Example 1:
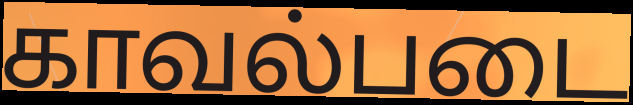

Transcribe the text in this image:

காவல்படை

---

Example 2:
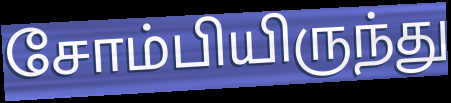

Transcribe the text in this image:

சோம்பியிருந்து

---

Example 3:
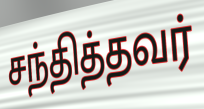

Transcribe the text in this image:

சந்தித்தவர்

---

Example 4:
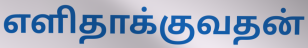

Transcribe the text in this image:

எளிதாக்குவதன்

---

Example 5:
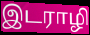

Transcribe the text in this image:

இடராழி